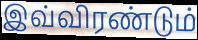
இவ்விரண்டும்